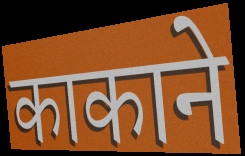
काकाने